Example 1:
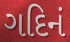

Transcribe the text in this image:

ગદિનં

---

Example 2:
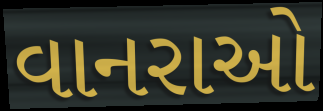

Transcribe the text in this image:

વાનરાઓ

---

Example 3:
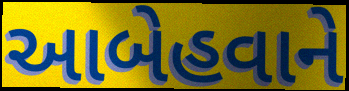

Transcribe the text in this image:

આબેહવાને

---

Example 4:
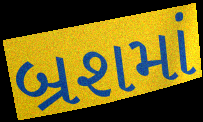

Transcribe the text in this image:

બ્રશમાં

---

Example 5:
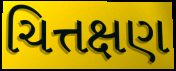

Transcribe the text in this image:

ચિત્તક્ષણ